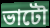
ভাটৌ